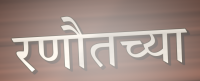
रणौतच्या